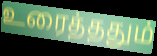
உரைத்ததும்